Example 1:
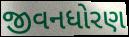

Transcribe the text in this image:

જીવનધોરણ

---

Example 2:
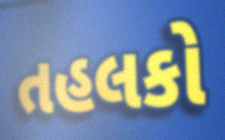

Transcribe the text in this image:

તહલકો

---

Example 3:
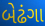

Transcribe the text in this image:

બેઢંગા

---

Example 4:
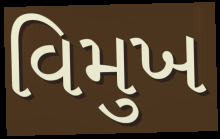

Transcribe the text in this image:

વિમુખ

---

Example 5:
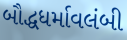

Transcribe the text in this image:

બૌદ્ધધર્માવલંબી